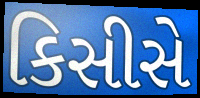
કિસીસે